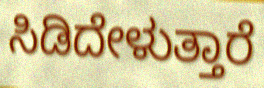
ಸಿಡಿದೇಳುತ್ತಾರೆ